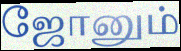
ஜோனும்